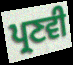
ਪ੍ਰਣਵੀ